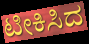
ಟೀಕಿಸಿದ